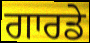
ਗਾਰਡੇ